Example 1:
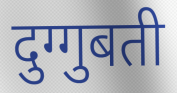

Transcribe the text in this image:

दुग्गुबती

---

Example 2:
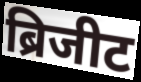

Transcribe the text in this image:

ब्रिजीट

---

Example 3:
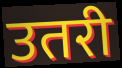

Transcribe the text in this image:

उतरी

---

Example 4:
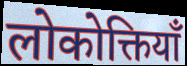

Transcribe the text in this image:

लोकोक्तियाँ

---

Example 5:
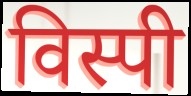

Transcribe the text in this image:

विस्पी